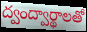
ద్వంద్వార్థాలతో